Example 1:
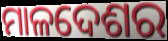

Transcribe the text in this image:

ମାଳଦେଶର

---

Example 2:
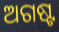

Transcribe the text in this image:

ଅଗଷ୍ଟ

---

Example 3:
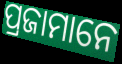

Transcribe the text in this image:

ପ୍ରଜାମାନେ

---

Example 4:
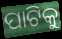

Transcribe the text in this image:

ପାଟିକୁ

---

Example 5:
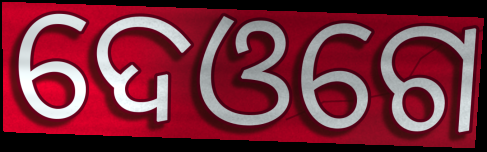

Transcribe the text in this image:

ଦେଓଗେ